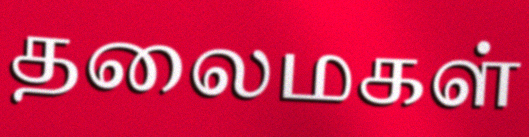
தலைமகள்